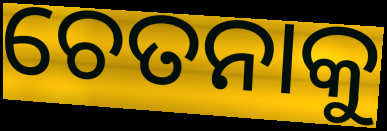
ଚେତନାକୁ